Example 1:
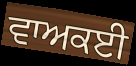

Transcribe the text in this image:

ਵਾਅਕਈ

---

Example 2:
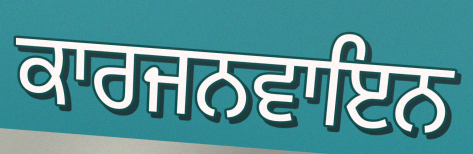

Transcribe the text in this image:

ਕਾਰਜਨਵਾਇਨ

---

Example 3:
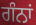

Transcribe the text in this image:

ਗੰਨਾਂ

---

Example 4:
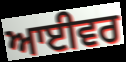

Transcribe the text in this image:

ਆਈਵਰ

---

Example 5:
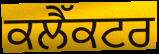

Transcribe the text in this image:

ਕਲੈੱਕਟਰ